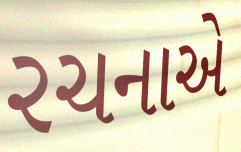
રચનાએ